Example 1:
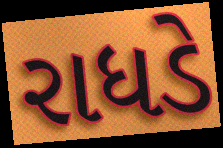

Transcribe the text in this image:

રાધડે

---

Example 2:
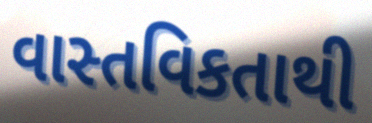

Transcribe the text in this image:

વાસ્તવિકતાથી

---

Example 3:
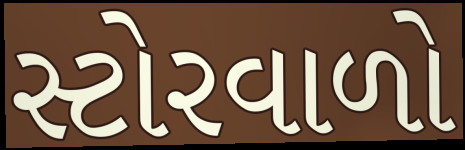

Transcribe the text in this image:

સ્ટોરવાળો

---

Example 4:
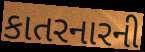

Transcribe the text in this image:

કાતરનારની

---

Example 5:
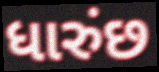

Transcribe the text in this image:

ધારુંછ